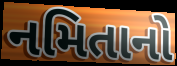
નમિતાનો